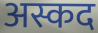
अस्कद